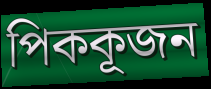
পিককূজন